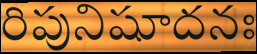
రిపునిషూదనః